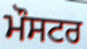
ਮੌਸਟਰ